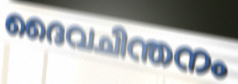
ദൈവചിന്തനം